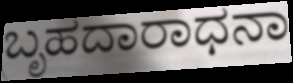
ಬೃಹದಾರಾಧನಾ